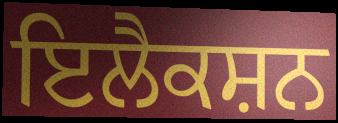
ਇਲੈਕਸ਼ਨ